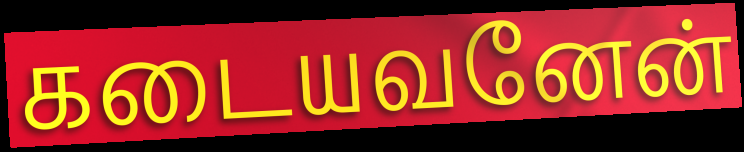
கடையவனேன்